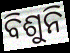
ବିଶୁନି